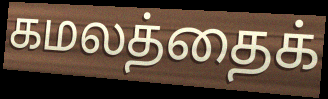
கமலத்தைக்